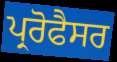
ਪ੍ਰਰੋਫੈਸਰ